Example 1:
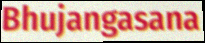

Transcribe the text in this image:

Bhujangasana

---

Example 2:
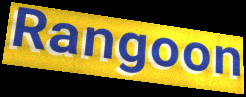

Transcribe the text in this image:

Rangoon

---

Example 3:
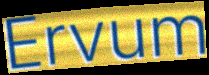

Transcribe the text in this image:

Ervum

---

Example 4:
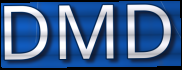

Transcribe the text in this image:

DMD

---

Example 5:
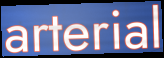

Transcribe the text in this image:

arterial